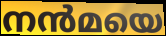
നൻമയെ